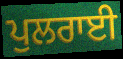
ਪੁਲਰਾਈ